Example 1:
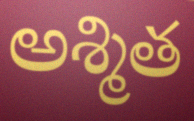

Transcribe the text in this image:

అశ్మిత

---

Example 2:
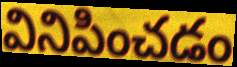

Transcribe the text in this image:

వినిపించడం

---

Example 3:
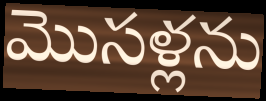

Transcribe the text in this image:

మొసళ్లను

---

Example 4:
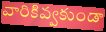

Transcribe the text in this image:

వారికివ్వకుండా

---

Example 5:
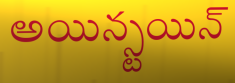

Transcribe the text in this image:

అయిన్స్టయిన్